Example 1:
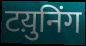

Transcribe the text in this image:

टय़ुनिंग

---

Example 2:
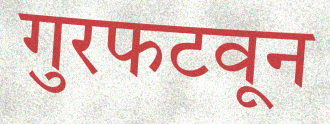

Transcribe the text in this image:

गुरफटवून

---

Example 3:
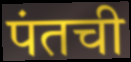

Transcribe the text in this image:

पंतची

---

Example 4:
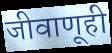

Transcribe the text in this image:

जीवाणूही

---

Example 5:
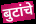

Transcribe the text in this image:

बुटांचे